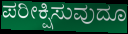
ಪರೀಕ್ಷಿಸುವುದೂ